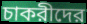
চাকরীদের